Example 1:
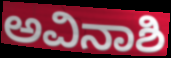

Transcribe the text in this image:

ಅವಿನಾಶಿ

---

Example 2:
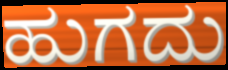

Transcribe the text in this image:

ಹುಗದು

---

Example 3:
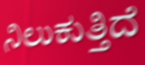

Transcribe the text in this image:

ನಿಲುಕುತ್ತಿದೆ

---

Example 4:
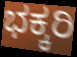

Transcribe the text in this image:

ಭಕ್ಕರಿ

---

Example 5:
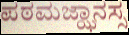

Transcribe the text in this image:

ಪಠಮಜ್ಝಾನಸ್ಸ